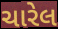
ચારેલ